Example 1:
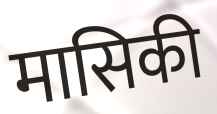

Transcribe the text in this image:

मासिकी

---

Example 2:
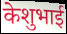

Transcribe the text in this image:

केशुभाई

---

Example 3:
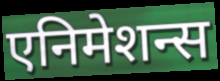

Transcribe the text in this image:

एनिमेशन्स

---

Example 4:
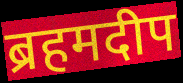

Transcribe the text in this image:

ब्रहमदीप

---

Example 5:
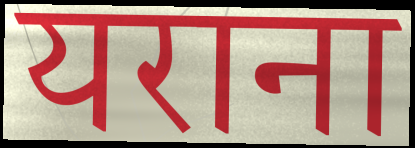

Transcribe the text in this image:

यराना